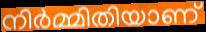
നിർമ്മിതിയാണ്